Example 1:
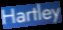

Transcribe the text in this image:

Hartley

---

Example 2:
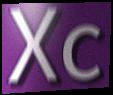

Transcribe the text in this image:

Xc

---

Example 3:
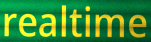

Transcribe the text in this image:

realtime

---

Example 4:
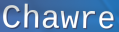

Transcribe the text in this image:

Chawre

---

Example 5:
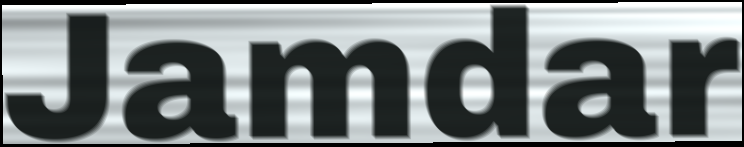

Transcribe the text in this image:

Jamdar